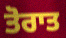
ਤੋਰਾਤ